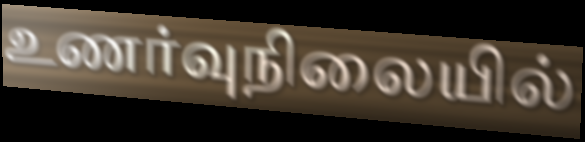
உணர்வுநிலையில்